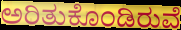
ಅರಿತುಕೊಂಡಿರುವೆ